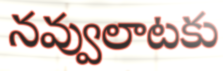
నవ్వులాటకు